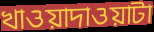
খাওয়াদাওয়াটা